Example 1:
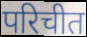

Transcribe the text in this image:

परिचीत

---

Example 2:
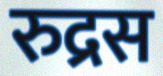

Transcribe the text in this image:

रुद्रस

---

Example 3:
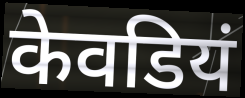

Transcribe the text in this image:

केवडियं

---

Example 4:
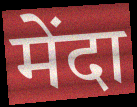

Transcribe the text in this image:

मेंदा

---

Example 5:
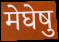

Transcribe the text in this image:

मेघेषु